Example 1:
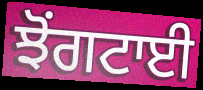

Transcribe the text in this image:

ਝੋਂਗਟਾਈ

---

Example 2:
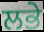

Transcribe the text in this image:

ਲਭੇ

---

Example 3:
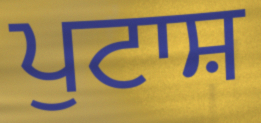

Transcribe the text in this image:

ਪੁਟਾਸ਼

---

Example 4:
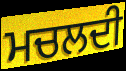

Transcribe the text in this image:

ਮਚਲਦੀ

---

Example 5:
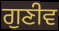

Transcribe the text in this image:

ਗੁਣੀਵ